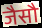
जैसौ